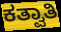
ಕತ್ವಾತಿ